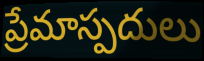
ప్రేమాస్పదులు